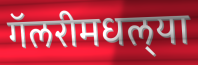
गॅलरीमधल्या